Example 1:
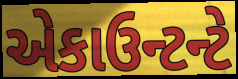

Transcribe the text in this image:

એકાઉન્ટન્ટે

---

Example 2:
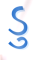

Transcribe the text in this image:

ડુ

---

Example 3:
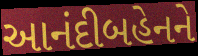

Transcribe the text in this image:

આનંદીબહેનને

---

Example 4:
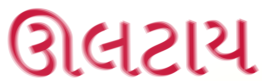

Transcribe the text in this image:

ઊલટાય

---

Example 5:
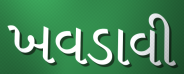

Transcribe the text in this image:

ખવડાવી